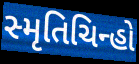
સ્મૃતિચિન્હો